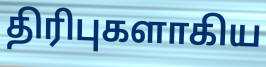
திரிபுகளாகிய